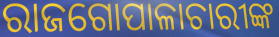
ରାଜଗୋପାଳାଚାରୀଙ୍କ